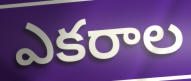
ఎకరాల